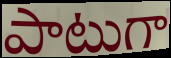
పాటుగా